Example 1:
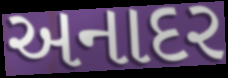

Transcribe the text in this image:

અનાદર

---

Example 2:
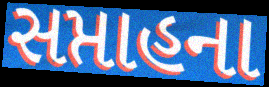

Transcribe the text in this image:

સપ્તાહના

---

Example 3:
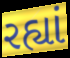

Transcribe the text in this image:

રહ્યાં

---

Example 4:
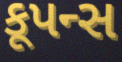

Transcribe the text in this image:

કૂપન્સ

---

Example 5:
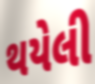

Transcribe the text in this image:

થયેલી